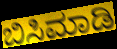
ಬಿಸಿಮಾಡಿ